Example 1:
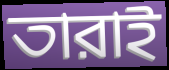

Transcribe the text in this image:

তারাই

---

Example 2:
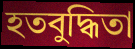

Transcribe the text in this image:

হতবুদ্ধিতা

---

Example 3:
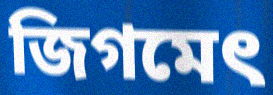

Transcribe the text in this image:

জিগমেৎ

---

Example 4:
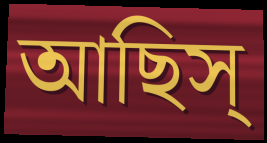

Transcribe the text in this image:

আছিস্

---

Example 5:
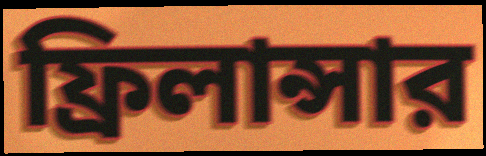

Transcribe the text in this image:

ফ্রিলান্সার